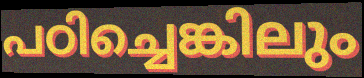
പഠിച്ചെങ്കിലും